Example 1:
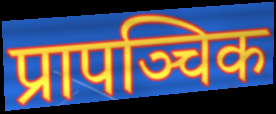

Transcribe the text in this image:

प्रापञ्चिक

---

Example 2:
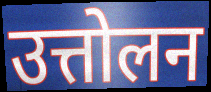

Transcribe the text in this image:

उत्तोलन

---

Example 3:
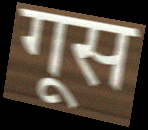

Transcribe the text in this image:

गूस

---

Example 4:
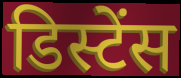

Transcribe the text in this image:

डिस्टेंस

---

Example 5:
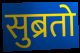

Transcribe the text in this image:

सुब्रतो